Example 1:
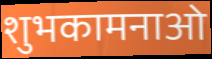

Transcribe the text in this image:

शुभकामनाओ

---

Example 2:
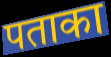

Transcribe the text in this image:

पताका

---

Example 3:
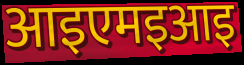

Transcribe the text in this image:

आइएमइआइ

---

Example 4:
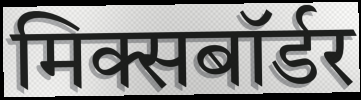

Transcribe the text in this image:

मिक्सबॉर्डर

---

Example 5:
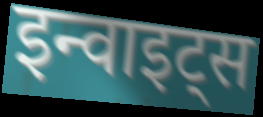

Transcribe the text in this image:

इन्वाइट्स